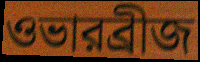
ওভারব্রীজ